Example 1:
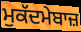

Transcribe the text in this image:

ਮੁਕੱਦਮੇਬਾਜ਼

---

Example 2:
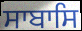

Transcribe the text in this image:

ਸਾਬਾਸਿ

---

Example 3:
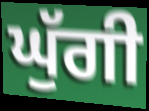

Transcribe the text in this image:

ਘੁੱਗੀ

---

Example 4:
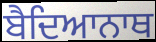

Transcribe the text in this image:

ਬੈਦਿਆਨਾਥ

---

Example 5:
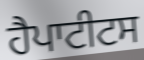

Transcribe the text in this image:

ਹੈਪਾਟੀਟਸ